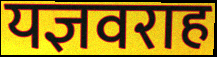
यज्ञवराह